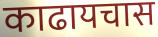
काढायचास